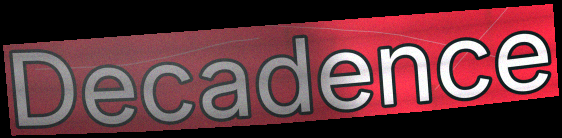
Decadence